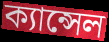
ক্যান্সেল